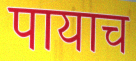
पायाच